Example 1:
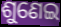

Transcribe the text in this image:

ଶୁଣେଇ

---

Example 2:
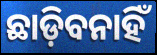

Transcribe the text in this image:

ଛାଡ଼ିବନାହିଁ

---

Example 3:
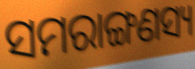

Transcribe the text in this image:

ସମରାଙ୍ଗଣସ୍ୟ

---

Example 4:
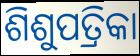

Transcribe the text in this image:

ଶିଶୁପତ୍ରିକା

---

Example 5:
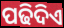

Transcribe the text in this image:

ପଢିଦିଏ